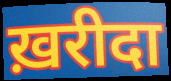
ख़रीदा